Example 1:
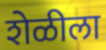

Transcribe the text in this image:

शेळीला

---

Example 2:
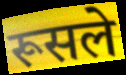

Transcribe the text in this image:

रूसले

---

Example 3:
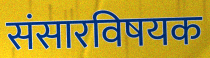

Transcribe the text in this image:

संसारविषयक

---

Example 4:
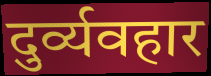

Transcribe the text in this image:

दुर्व्यवहार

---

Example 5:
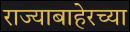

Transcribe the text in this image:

राज्याबाहेरच्या